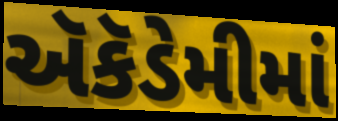
ઍકૅડેમીમાં